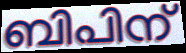
ബിപിന്